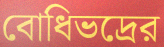
বোধিভদ্রের